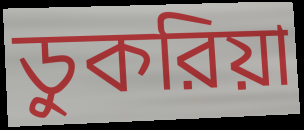
ডুকরিয়া